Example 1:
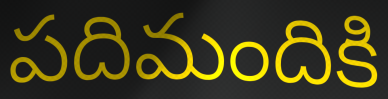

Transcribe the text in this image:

పదిమందికి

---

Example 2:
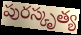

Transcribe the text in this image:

పురస్కృత్య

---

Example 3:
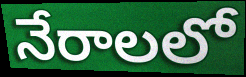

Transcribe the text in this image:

నేరాలలో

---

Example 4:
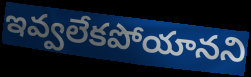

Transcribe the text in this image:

ఇవ్వలేకపోయానని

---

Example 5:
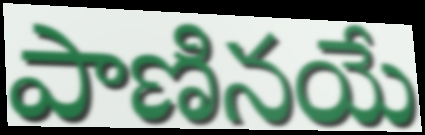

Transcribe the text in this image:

పాణినయే